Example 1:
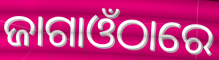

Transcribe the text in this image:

ଜାଗାଓଁଠାରେ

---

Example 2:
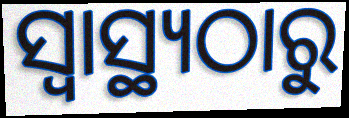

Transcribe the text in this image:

ସ୍ବାସ୍ଥ୍ୟଠାରୁ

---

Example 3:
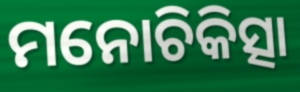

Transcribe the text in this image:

ମନୋଚିକିତ୍ସା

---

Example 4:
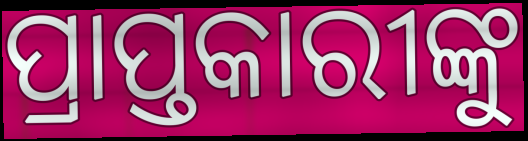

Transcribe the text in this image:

ପ୍ରାପ୍ତକାରୀଙ୍କୁ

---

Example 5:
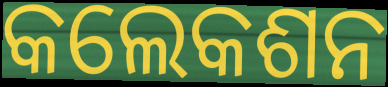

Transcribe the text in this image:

କଲେକଶନ